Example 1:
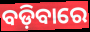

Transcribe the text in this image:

ବଡ଼ିବାରେ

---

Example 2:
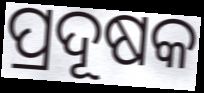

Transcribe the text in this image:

ପ୍ରଦୂଷକ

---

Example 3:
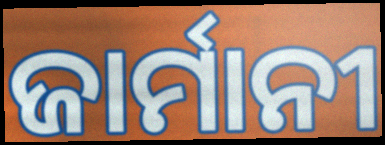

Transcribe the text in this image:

ଜାର୍ମାନୀ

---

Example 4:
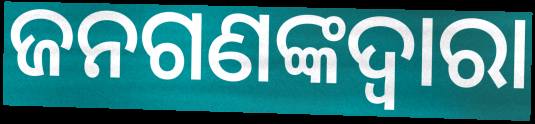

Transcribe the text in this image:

ଜନଗଣଙ୍କଦ୍ୱାରା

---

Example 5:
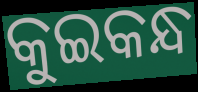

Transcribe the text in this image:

କୁଇକନ୍ଧ